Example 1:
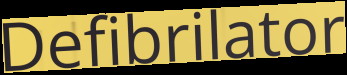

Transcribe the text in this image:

Defibrilator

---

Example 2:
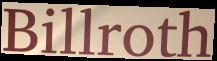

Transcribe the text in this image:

Billroth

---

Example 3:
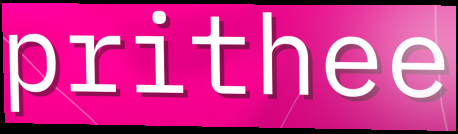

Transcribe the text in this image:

prithee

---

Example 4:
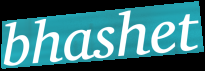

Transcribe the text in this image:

bhashet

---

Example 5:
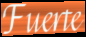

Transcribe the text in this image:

Fuerte